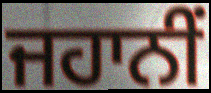
ਜਹਾਨੀਂ